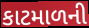
કાટમાળની